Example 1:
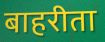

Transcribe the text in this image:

बाहरीता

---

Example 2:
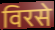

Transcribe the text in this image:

विरसे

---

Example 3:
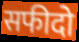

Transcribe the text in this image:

सफीदो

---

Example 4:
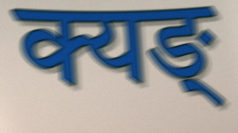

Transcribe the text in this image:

क्यङ्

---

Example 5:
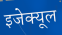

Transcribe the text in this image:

इजेक्यूल